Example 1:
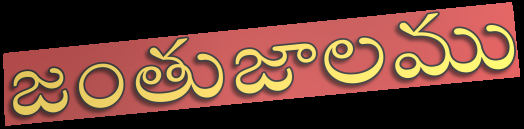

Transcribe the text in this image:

జంతుజాలము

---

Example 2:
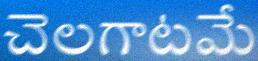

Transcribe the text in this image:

చెలగాటమే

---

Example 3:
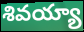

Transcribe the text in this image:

శివయ్యా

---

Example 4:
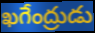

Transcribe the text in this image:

ఖగేంద్రుడు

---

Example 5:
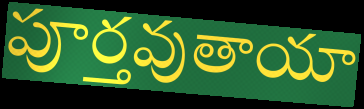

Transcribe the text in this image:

పూర్తవుతాయా